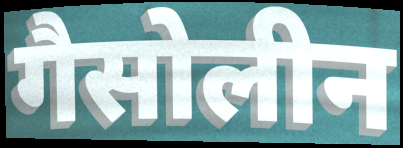
गैसोलीन